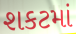
શકટમાં